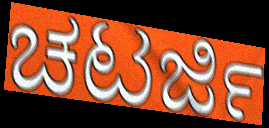
ಚಟರ್ಜಿ